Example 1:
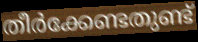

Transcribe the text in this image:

തീർക്കേണ്ടതുണ്ട്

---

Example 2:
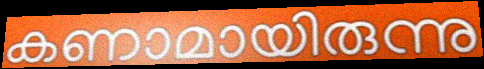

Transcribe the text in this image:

കണാമായിരുന്നു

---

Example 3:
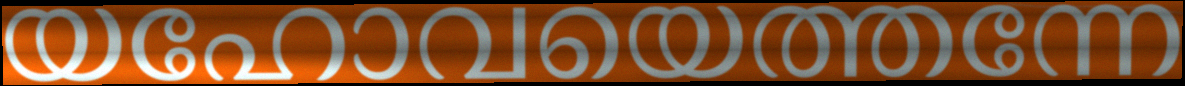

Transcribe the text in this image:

യഹോവയെത്തന്നേ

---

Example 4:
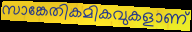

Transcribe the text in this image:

സാങ്കേതികമികവുകളാണ്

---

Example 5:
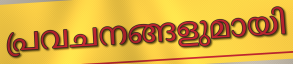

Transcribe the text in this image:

പ്രവചനങ്ങളുമായി